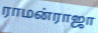
ராமன்ராஜா